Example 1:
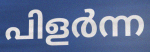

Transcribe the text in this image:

പിളർന്ന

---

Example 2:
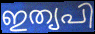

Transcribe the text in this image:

ഇത്യപി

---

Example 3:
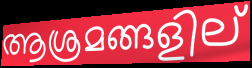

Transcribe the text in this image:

ആശ്രമങ്ങളില്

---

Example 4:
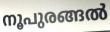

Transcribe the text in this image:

നൂപുരങ്ങൽ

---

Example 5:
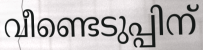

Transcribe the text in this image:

വീണ്ടെടുപ്പിന്